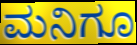
ಮನಿಗೂ